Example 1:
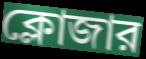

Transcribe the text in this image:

ক্লোজার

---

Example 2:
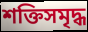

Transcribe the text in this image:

শক্তিসমৃদ্ধ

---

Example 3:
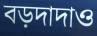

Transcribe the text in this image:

বড়দাদাও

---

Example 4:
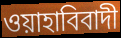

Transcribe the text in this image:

ওয়াহাবিবাদী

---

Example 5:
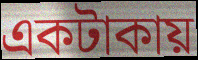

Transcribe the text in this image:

একটাকায়